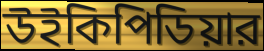
উইকিপিডিয়ার